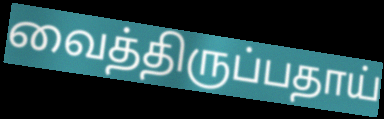
வைத்திருப்பதாய்